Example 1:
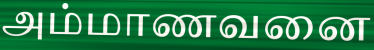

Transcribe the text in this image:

அம்மாணவனை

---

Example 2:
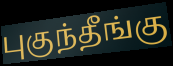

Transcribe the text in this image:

புகுந்தீங்கு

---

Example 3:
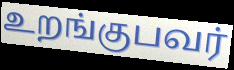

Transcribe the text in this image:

உறங்குபவர்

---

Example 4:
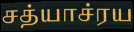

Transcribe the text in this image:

சத்யாச்ரய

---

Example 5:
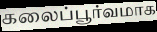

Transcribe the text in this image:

கலைப்பூர்வமாக